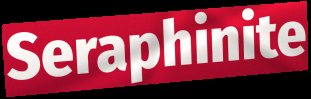
Seraphinite